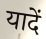
यादें